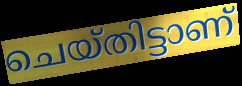
ചെയ്തിട്ടാണ്